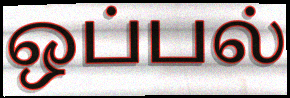
ஒப்பல்